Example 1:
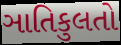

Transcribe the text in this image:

ઞાતિકુલતો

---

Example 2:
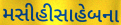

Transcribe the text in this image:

મસીહીસાહેબના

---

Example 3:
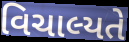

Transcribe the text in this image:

વિચાલ્યતે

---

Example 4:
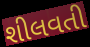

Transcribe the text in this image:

શીલવતી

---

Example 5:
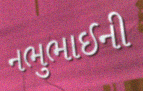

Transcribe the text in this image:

નભુભાઈની